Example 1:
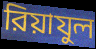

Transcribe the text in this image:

রিয়াযুল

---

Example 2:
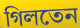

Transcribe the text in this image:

গিলতেন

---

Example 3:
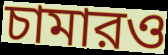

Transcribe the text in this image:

চামারও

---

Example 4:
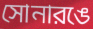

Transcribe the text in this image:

সোনারঙে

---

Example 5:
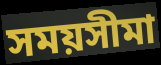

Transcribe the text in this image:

সময়সীমা